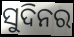
ସୁଦିନର